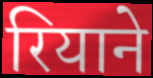
रियाने